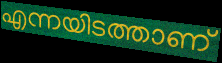
എന്നയിടത്താണ്